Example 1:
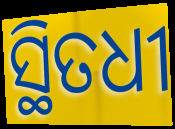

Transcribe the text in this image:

ସ୍ଥିତଧୀ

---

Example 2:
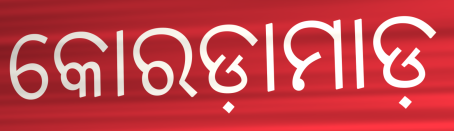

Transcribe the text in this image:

କୋରଡ଼ାମାଡ଼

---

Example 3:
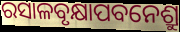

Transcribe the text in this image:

ରସାଳବୃକ୍ଷାପବନେଶ୍ରୁ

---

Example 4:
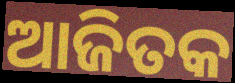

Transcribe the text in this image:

ଆଜିତକ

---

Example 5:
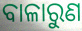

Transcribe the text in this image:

ବାଳାରୁଣ